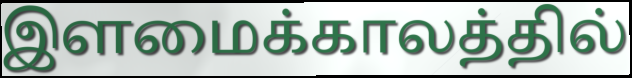
இளமைக்காலத்தில்